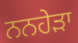
ਨਨਹੇੜਾ